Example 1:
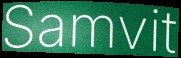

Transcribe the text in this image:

Samvit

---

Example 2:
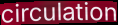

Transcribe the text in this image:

circulation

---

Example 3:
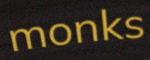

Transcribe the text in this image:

monks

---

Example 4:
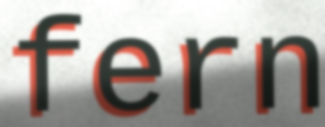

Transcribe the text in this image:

fern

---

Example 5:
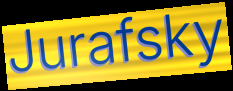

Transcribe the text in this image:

Jurafsky